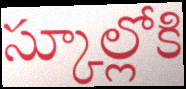
స్కూల్లోకి